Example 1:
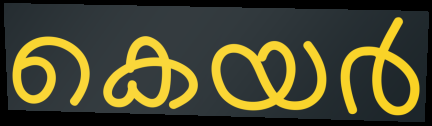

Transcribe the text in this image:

കെയർ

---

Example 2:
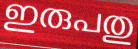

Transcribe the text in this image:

ഇരുപതു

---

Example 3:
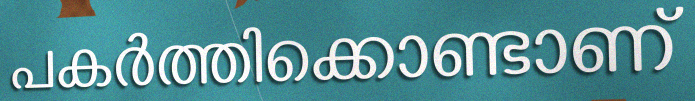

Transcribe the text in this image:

പകർത്തിക്കൊണ്ടാണ്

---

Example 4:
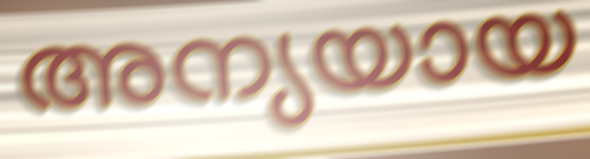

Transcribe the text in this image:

അന്യയായ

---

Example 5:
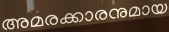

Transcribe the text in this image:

അമരക്കാരനുമായ